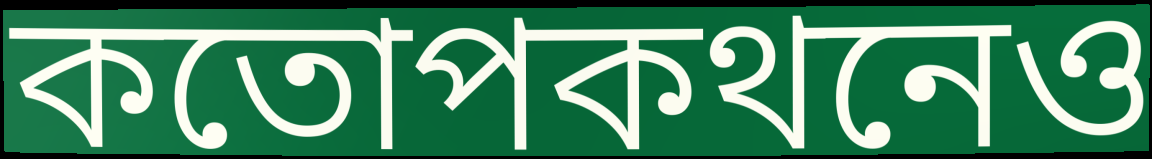
কতোপকথনেও